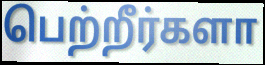
பெற்றீர்களா